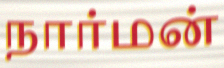
நார்மன்